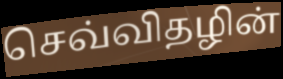
செவ்விதழின்